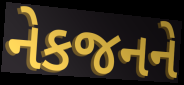
નેકજનને